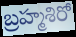
బ్రహ్మశిరో